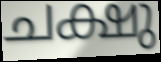
ചക്ഷു